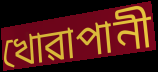
খোৱাপানী